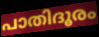
പാതിദൂരം